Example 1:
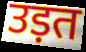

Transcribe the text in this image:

उड़त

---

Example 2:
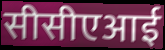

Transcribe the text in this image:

सीसीएआई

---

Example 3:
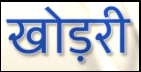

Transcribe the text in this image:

खोड़री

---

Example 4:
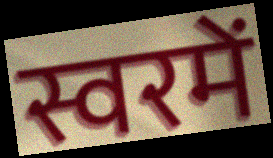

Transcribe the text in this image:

स्वरमें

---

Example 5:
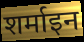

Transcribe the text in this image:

शर्माइन